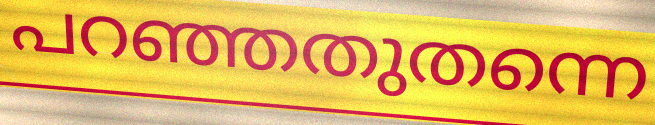
പറഞ്ഞതുതന്നെ